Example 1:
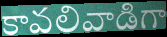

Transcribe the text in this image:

కావలివాడిగా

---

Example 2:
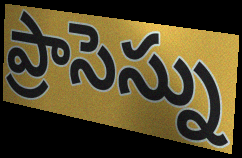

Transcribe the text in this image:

ప్రాసెస్ను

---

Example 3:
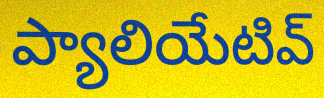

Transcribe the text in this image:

ప్యాలియేటివ్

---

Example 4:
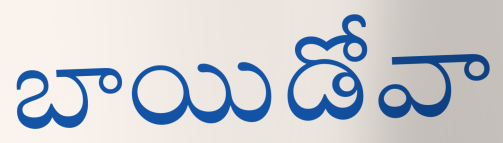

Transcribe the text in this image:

బాయిడోవా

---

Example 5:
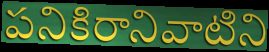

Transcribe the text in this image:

పనికిరానివాటిని